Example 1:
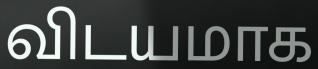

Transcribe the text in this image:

விடயமாக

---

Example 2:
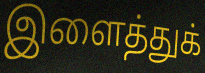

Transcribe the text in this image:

இளைத்துக்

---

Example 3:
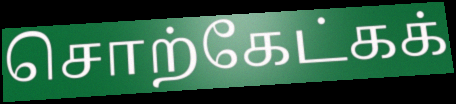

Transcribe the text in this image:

சொற்கேட்கக்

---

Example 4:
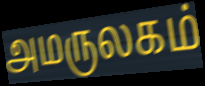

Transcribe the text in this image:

அமருலகம்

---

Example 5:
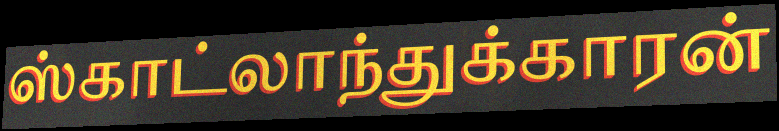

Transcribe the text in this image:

ஸ்காட்லாந்துக்காரன்